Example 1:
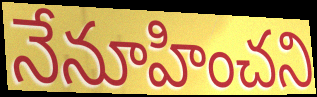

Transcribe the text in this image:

నేనూహించని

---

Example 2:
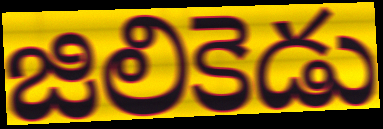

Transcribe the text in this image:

జిలికెడు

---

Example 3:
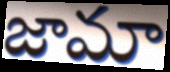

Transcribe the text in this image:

జామా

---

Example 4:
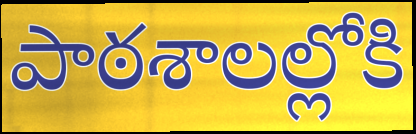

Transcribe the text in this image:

పాఠశాలల్లోకి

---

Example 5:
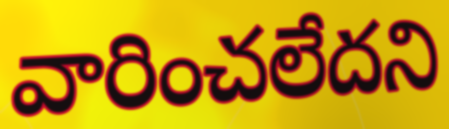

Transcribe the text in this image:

వారించలేదని